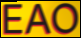
EAO